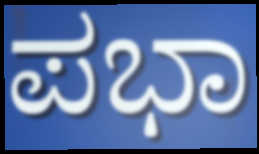
ಪಭಾ